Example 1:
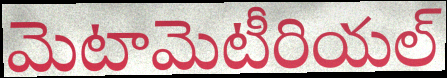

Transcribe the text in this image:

మెటామెటీరియల్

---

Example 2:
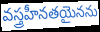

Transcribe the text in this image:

వస్త్రహీనతయైనను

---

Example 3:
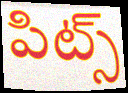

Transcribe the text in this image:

పిట్స్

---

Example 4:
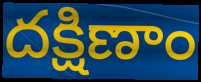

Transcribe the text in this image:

దక్షిణాం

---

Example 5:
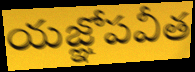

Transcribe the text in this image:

యజ్ఞోపవీత